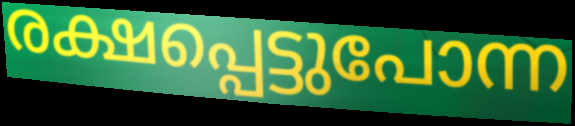
രക്ഷപ്പെട്ടുപോന്ന